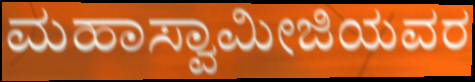
ಮಹಾಸ್ವಾಮೀಜಿಯವರ